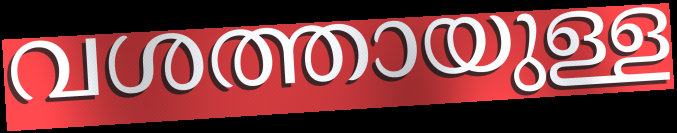
വശത്തായുള്ള